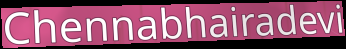
Chennabhairadevi